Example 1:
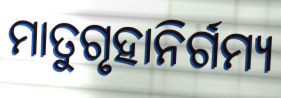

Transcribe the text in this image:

ମାତୁଗୃହାନିର୍ଗମ୍ୟ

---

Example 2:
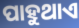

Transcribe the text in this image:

ପାହୁଥାଏ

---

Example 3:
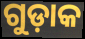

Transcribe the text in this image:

ଗୁଡ଼ାକ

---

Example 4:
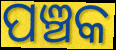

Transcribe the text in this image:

ପଞ୍ଚକ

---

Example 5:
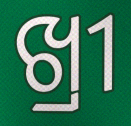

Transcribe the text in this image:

ଖ୍ରୀ